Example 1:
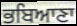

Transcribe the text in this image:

ਭਬਿਆਣਾ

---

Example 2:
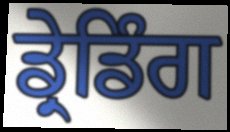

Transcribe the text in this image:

ਡ੍ਰੇਡਿੰਗ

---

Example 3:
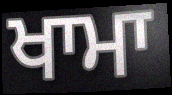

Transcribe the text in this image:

ਖਾਮਾ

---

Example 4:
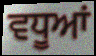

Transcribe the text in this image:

ਵਧੂਆਂ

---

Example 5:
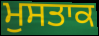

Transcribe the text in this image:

ਮੁਸਤਾਕ